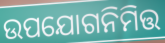
ଉପଯୋଗନିମିତ୍ତ